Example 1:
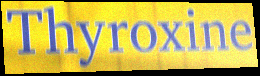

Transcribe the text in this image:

Thyroxine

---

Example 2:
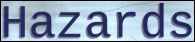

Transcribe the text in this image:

Hazards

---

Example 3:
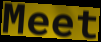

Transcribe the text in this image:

Meet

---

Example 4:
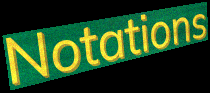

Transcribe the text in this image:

Notations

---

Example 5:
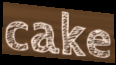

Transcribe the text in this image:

cake